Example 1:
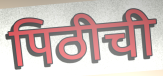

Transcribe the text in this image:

पिठीची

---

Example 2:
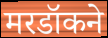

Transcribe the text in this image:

मरडॉकने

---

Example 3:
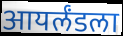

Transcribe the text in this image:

आयर्लंडला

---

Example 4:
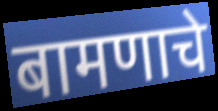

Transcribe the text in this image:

बामणाचे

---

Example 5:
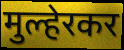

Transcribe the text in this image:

मुल्हेरकर